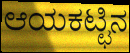
ಆಯಕಟ್ಟಿನ